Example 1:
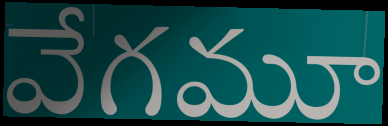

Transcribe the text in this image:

వేగమూ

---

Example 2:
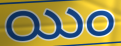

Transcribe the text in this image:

యిం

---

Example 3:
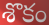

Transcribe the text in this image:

శొకం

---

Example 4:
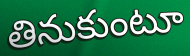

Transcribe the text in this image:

తినుకుంటూ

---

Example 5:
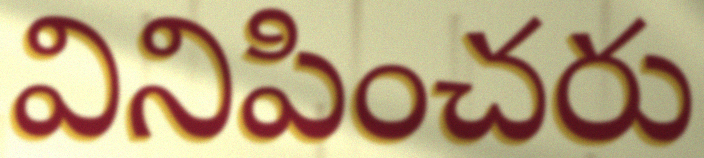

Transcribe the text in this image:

వినిపించరు